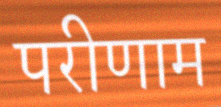
परीणाम